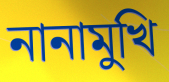
নানামুখি